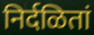
निर्दळितां